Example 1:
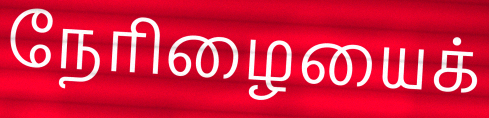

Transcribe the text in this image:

நேரிழையைக்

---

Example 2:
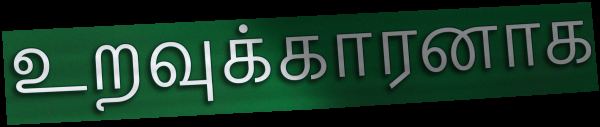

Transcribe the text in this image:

உறவுக்காரனாக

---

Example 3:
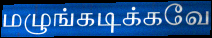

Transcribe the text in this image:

மழுங்கடிக்கவே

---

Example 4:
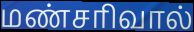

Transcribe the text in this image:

மண்சரிவால்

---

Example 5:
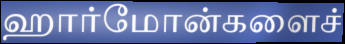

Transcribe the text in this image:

ஹார்மோன்களைச்